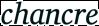
chancre